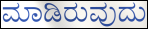
ಮಾಡಿರುವುದು